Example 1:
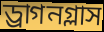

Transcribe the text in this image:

ড্রাগনগ্লাস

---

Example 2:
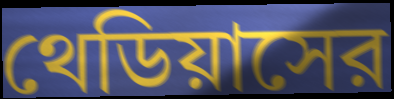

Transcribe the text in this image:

থেডিয়াসের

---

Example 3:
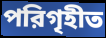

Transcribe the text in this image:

পরিগৃহীত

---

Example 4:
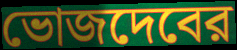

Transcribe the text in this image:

ভোজদেবের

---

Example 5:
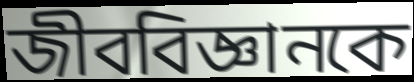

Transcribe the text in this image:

জীববিজ্ঞানকে